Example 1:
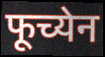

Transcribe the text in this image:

फूच्येन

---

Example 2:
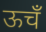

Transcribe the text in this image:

ऊचँ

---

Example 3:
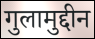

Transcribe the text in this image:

गुलामुद्दीन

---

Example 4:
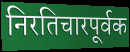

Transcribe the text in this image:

निरतिचारपूर्वक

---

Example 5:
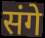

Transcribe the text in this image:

संगे